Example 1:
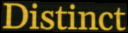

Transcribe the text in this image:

Distinct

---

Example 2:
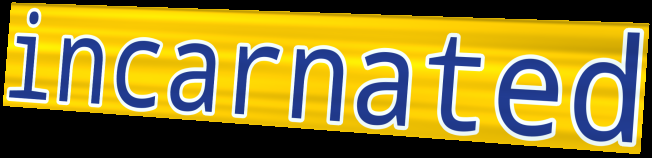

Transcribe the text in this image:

incarnated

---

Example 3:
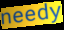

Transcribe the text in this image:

needy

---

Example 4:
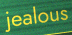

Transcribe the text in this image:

jealous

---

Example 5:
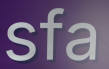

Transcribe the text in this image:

sfa